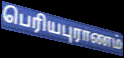
பெரியபுராணம்